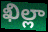
ఖిల్లా